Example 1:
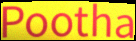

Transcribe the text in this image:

Pootha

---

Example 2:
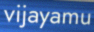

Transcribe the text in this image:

vijayamu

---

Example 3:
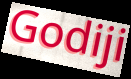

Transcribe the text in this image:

Godiji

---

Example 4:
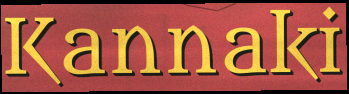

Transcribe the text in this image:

Kannaki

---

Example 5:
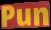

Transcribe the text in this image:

Pun